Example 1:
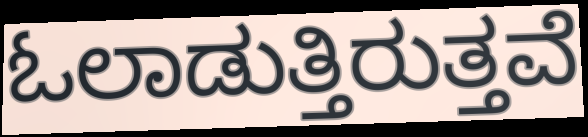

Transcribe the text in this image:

ಓಲಾಡುತ್ತಿರುತ್ತವೆ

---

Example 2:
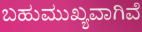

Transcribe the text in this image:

ಬಹುಮುಖ್ಯವಾಗಿವೆ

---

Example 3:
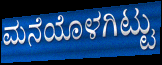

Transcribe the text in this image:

ಮನೆಯೊಳಗಿಟ್ಟು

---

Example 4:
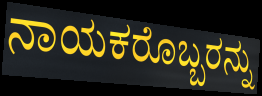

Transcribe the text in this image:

ನಾಯಕರೊಬ್ಬರನ್ನು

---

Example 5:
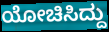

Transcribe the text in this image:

ಯೋಚಿಸಿದ್ದು